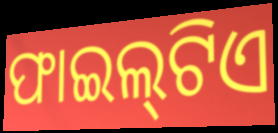
ଫାଇଲ୍‌ଟିଏ